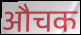
औचक